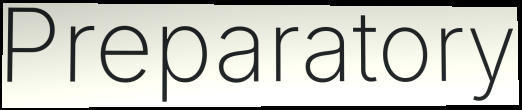
Preparatory